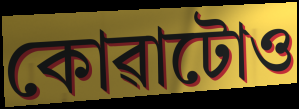
কোৱাটোও